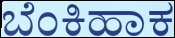
ಬೆಂಕಿಹಾಕ